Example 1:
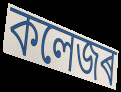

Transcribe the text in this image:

কলেজৰ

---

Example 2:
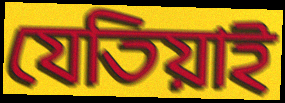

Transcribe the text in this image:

যেতিয়াই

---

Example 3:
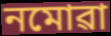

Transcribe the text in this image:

নমোৱা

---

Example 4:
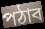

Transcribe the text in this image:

পঠাব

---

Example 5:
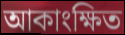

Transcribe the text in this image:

আকাংক্ষিত